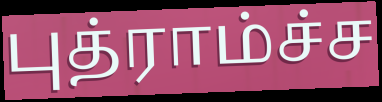
புத்ராம்ச்ச